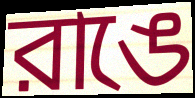
রাঙে